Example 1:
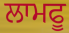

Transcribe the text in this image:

ਲਾਮਫੂ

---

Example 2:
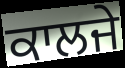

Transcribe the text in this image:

ਕਾਲਜੇ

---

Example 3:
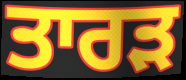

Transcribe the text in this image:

ਤਾਰੜ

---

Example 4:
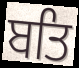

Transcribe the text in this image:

ਬਤਿ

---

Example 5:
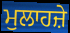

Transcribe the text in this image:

ਮੁਲਾਹਜ਼ੇ